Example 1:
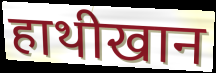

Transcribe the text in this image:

हाथीखान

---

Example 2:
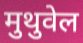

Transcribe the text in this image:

मुथुवेल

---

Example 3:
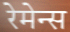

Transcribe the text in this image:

रेमेन्स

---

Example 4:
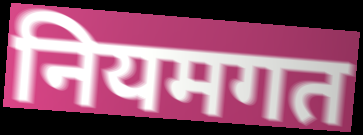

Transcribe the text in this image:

नियमगत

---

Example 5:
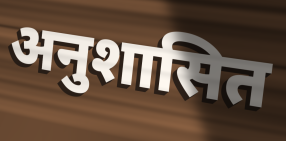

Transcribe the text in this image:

अनुशासित